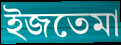
ইজতেমা